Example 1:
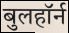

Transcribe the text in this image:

बुलहॉर्न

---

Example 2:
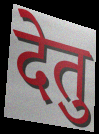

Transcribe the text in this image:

देतु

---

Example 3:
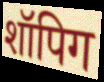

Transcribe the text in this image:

शॉपिग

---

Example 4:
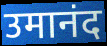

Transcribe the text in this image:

उमानंद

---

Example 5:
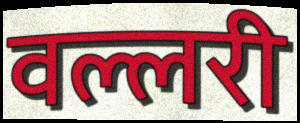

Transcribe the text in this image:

वल्लरी